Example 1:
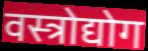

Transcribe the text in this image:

वस्त्रोद्योग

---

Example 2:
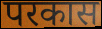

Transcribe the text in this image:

परकास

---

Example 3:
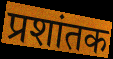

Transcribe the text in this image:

प्रशांतक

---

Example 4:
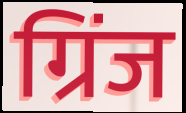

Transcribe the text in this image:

ग्रिंज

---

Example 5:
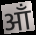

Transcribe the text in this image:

आँ